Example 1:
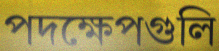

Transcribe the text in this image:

পদক্ষেপগুলি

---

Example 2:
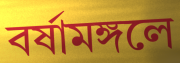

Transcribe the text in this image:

বর্ষামঙ্গলে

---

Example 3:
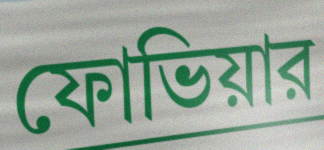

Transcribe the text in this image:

ফোভিয়ার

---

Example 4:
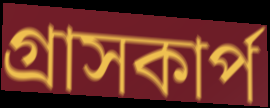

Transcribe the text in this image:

গ্রাসকার্প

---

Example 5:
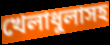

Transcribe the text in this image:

খেলাধুলাসহ